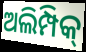
ଅଲିମ୍ପିକ୍